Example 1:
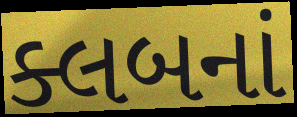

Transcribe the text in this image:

ક્લબનાં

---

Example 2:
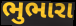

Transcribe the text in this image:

ભુભારા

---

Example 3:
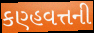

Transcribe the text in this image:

કણ્હવત્તની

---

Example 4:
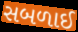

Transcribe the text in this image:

સબળાઈ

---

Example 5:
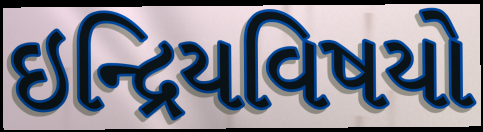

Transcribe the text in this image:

ઇન્દ્રિયવિષયો